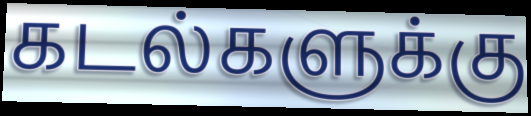
கடல்களுக்கு